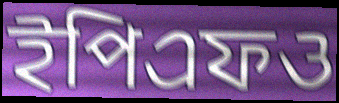
ইপিএফও